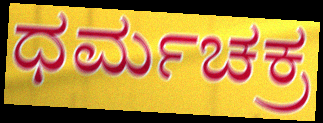
ಧರ್ಮಚಕ್ರ